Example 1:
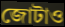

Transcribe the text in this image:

জোটাও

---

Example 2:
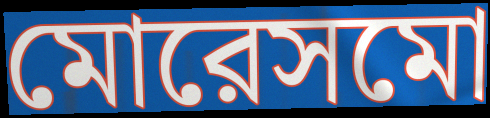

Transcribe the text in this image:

মোরেসমো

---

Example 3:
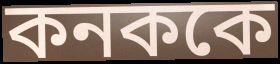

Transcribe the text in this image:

কনককে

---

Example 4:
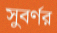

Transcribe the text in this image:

সুবর্ণর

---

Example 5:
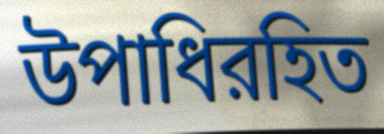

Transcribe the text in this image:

উপাধিরহিত